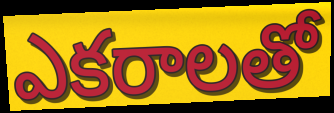
ఎకరాలతో